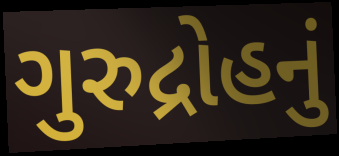
ગુરુદ્રોહનું